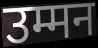
उम्मन